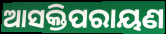
ଆସକ୍ତିପରାୟଣ